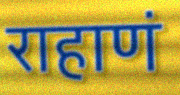
राहाणं